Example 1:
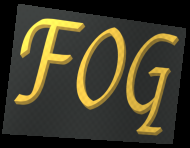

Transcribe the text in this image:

FOG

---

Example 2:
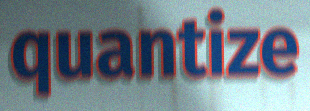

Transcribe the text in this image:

quantize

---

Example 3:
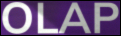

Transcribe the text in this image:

OLAP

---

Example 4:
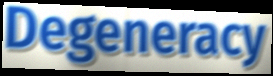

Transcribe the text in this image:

Degeneracy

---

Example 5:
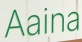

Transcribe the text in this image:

Aaina